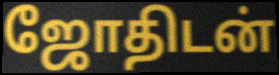
ஜோதிடன்